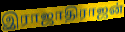
இராஜாதிராஜன்